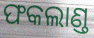
ଫକଲାଣ୍ଡ